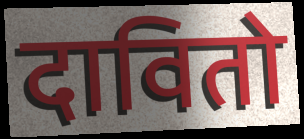
दावितो